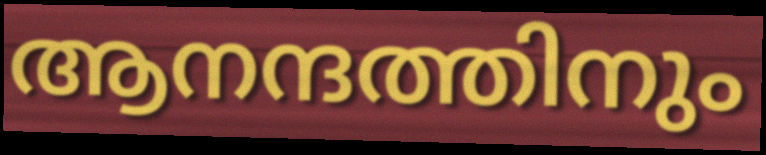
ആനന്ദത്തിനും